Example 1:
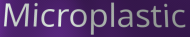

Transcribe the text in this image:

Microplastic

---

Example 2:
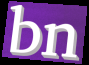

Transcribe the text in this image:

bn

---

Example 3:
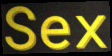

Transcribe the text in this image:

Sex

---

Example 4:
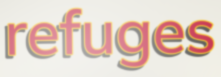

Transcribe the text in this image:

refuges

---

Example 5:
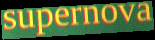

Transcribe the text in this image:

supernova